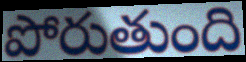
పోరుతుంది